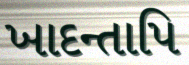
ખાદન્તાપિ